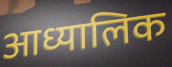
आध्यालिक